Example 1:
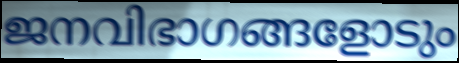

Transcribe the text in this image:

ജനവിഭാഗങ്ങളോടും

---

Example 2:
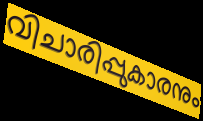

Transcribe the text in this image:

വിചാരിപ്പുകാരനും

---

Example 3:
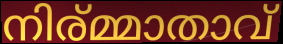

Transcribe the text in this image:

നിര്മ്മാതാവ്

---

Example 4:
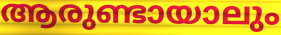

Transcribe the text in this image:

ആരുണ്ടായാലും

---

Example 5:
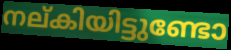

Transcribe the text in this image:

നല്കിയിട്ടുണ്ടോ